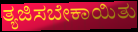
ತ್ಯಜಿಸಬೇಕಾಯಿತು